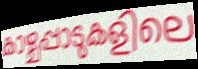
കാഴ്ചപ്പാടുകളിലെ